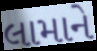
લામાને